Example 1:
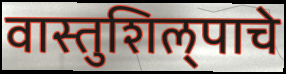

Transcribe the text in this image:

वास्तुशिल्पाचे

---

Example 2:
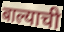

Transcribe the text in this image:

बाल्याची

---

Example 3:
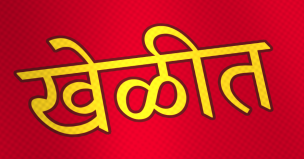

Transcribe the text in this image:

खेळीत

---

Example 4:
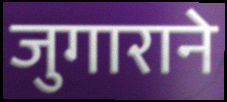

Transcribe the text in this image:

जुगाराने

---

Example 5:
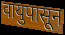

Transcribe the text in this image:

वायुपासून